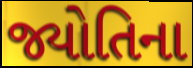
જ્યોતિના